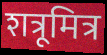
शत्रूमित्र